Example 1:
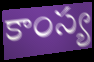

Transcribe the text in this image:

కాంస్య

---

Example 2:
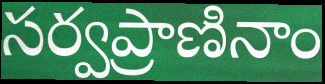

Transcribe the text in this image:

సర్వప్రాణినాం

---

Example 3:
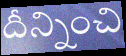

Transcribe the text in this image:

దీన్నించి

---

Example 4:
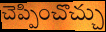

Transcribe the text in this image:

చెప్పించొచ్చు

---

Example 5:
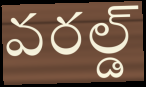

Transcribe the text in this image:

వరల్డ్